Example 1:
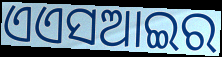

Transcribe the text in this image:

ଏଏସଆଇର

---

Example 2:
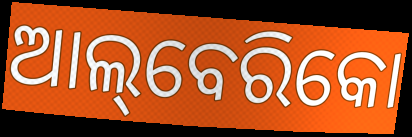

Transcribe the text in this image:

ଆଲ୍‌ବେରିକୋ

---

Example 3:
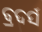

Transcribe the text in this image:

ବ୍ରଦର୍ସ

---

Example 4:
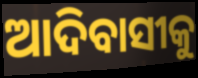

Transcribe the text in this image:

ଆଦିବାସୀକୁ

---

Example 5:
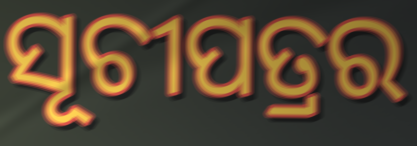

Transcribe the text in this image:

ସୂଚୀପତ୍ରର